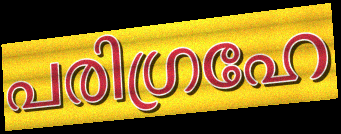
പരിഗ്രഹേ